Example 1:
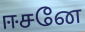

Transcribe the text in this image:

ஈசனே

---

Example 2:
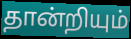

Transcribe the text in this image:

தான்றியும்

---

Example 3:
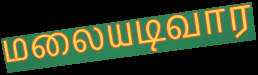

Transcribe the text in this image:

மலையடிவார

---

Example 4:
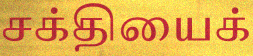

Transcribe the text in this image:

சக்தியைக்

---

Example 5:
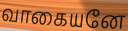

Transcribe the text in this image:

வாகையனே